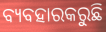
ବ୍ୟବହାରକରୁଛି